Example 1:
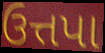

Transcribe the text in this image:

ઉત્તપા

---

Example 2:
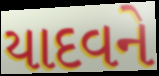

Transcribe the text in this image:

યાદવને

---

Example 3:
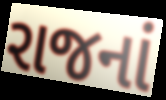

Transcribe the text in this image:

રાજનાં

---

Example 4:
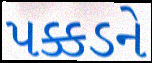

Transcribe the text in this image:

પક્કડને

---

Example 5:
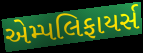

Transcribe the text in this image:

એમ્પલિફાયર્સ